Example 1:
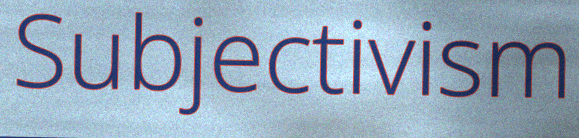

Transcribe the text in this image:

Subjectivism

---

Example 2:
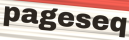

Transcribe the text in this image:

pageseq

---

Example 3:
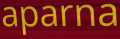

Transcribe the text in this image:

aparna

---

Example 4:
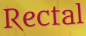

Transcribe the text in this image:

Rectal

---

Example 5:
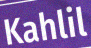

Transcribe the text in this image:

Kahlil